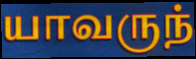
யாவருந்